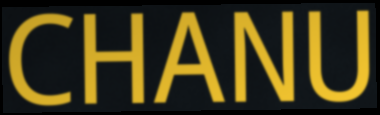
CHANU